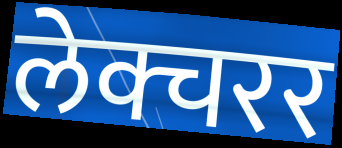
लेक्चरर